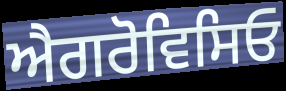
ਐਗਰੋਵਿਸਿਓ